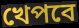
খেপবে